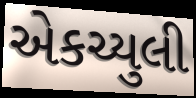
એકચ્યુલી